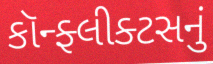
કૉન્ફ્લીક્ટસનું